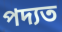
পদ্যত